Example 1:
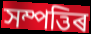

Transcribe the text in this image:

সম্পত্তিৰ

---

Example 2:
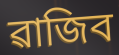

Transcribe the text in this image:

ৱাজিব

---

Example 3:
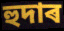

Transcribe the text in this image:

হুদাৰ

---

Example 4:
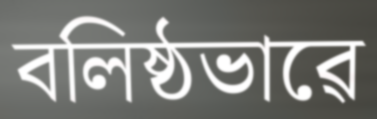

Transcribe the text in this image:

বলিষ্ঠভাৱে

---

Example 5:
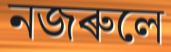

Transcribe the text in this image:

নজৰুলে